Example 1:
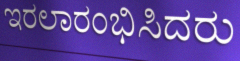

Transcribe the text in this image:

ಇರಲಾರಂಭಿಸಿದರು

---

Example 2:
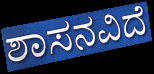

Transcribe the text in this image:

ಶಾಸನವಿದೆ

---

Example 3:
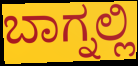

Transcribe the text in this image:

ಬಾಗ್ನಲ್ಲಿ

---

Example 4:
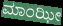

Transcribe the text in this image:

ಮಾಂಝೀ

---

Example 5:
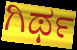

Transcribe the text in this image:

ಗಿರ್ಥ